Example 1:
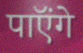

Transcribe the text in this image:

पाऍंगे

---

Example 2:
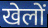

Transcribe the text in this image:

खेलों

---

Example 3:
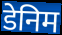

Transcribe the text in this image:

डेनिम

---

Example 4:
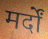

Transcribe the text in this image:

मर्दों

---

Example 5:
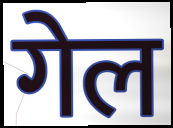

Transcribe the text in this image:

गेल